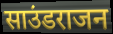
साउंडराजन